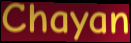
Chayan